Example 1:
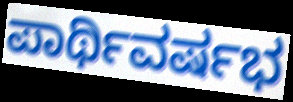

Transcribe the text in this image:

ಪಾರ್ಥಿವರ್ಷಭ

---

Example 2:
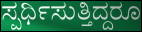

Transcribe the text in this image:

ಸ್ಪರ್ಧಿಸುತ್ತಿದ್ದರೂ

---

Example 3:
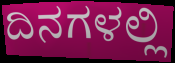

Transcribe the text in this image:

ದಿನಗಳಲ್ಲಿ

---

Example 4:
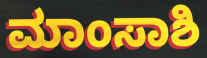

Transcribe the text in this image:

ಮಾಂಸಾಶಿ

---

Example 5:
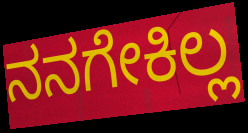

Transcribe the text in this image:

ನನಗೇಕಿಲ್ಲ